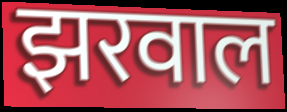
झरवाल